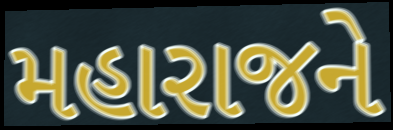
મહારાજને